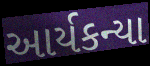
આર્યકન્યા